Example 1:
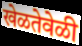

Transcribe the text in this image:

खेळतेवेळी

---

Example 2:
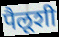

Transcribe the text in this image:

पैलूशी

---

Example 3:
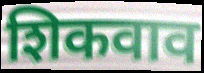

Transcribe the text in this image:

शिकवाव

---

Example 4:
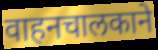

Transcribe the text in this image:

वाहनचालकाने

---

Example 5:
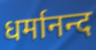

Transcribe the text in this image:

धर्मानन्द